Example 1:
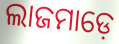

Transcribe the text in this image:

ଲାଜମାଡ଼େ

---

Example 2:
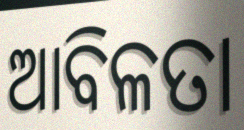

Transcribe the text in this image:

ଆବିଳତା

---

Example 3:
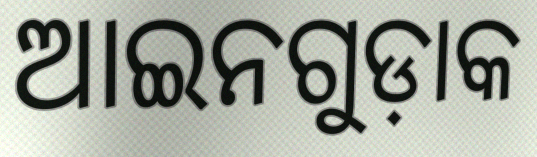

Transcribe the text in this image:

ଆଇନଗୁଡ଼ାକ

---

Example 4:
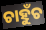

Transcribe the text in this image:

ଚାହୁଁଚ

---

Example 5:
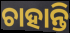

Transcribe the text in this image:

ଚାହାନ୍ତି